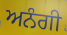
ਅਨੰਗੀ